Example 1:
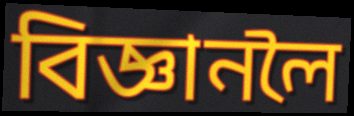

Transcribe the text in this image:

বিজ্ঞানলৈ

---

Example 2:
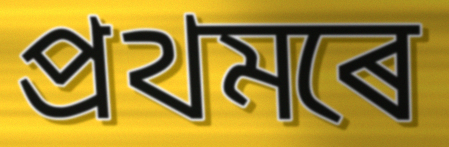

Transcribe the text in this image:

প্ৰথমৰে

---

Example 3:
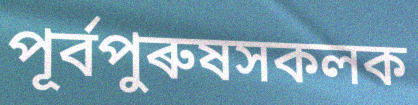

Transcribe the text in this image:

পূৰ্বপুৰুষসকলক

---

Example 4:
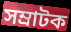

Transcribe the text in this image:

সম্ৰাটক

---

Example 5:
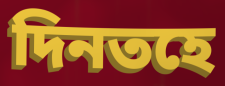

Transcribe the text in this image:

দিনতহে